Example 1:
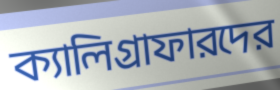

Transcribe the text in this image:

ক্যালিগ্রাফারদের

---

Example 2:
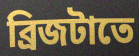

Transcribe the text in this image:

ব্রিজটাতে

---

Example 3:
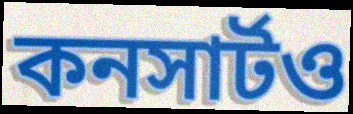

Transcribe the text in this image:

কনসার্টও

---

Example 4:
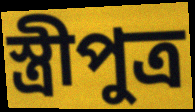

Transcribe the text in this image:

স্ত্রীপুত্র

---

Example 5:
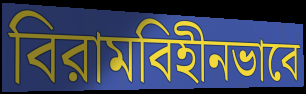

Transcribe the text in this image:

বিরামবিহীনভাবে